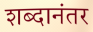
शब्दानंतर